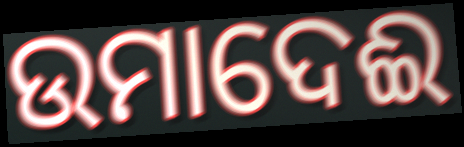
ଉମାଦେଈ